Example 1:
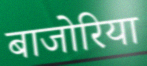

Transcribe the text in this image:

बाजोरिया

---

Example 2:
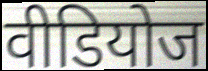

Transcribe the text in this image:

वीडियोज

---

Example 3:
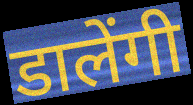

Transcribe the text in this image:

डालेंगी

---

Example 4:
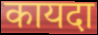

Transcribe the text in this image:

कायदा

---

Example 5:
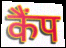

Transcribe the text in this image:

कैंप